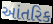
આંતરિક